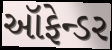
ઑફેન્ડર